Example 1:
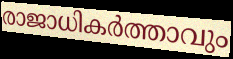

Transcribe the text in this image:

രാജാധികർത്താവും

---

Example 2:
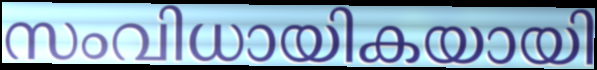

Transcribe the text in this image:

സംവിധായികയായി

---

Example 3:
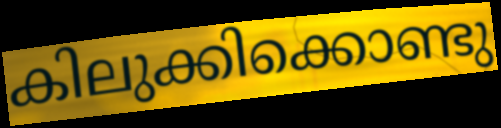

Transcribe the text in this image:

കിലുക്കിക്കൊണ്ടു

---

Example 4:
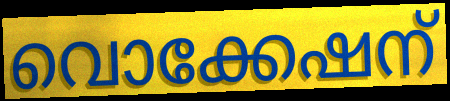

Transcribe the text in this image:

വൊക്കേഷന്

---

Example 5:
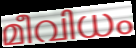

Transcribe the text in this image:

മീവിധം